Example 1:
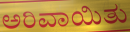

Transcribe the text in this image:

ಅರಿವಾಯಿತು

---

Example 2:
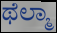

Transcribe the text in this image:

ಥೆಲ್ಮಾ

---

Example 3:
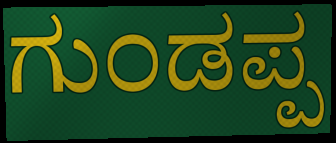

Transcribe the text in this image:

ಗುಂಡಪ್ಪ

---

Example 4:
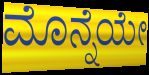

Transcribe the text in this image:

ಮೊನ್ನೆಯೇ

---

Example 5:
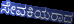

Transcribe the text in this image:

ಸೇವಕಿಯರಾದ